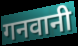
गनवानी